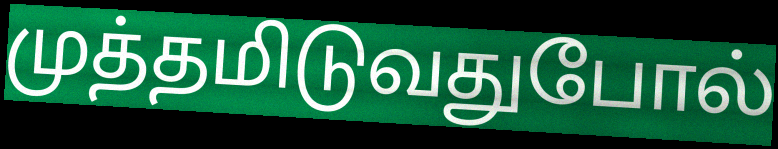
முத்தமிடுவதுபோல்